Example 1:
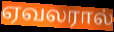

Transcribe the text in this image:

ஏவலரால்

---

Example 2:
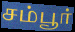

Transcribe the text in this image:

சம்பூர்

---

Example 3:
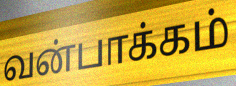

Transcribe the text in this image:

வன்பாக்கம்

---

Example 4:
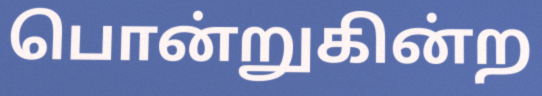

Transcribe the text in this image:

பொன்றுகின்ற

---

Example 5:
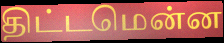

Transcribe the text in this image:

திட்டமென்ன